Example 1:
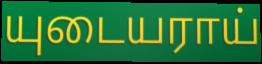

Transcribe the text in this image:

யுடையராய்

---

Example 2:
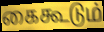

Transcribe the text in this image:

கைகூடும்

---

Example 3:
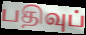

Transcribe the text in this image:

பதிவுப்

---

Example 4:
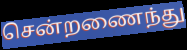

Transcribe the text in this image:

சென்றணைந்து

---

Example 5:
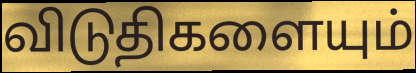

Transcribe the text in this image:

விடுதிகளையும்